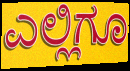
ಎಲ್ಲಿಗೂ